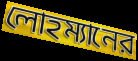
লোহম্যানের